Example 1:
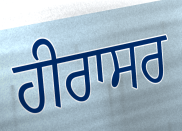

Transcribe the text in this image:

ਹੀਰਾਸਰ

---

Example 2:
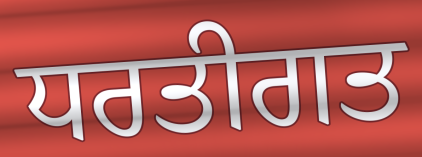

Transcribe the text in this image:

ਧਰਤੀਗਤ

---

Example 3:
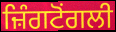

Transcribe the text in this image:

ਜ਼ਿੰਗਟੋਂਗਲੀ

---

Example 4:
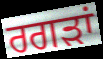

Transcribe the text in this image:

ਰਗੜਾਂ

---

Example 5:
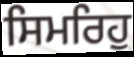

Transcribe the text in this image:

ਸਿਮਰਿਹੁ